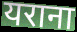
यराना